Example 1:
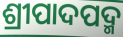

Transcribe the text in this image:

ଶ୍ରୀପାଦପଦ୍ମ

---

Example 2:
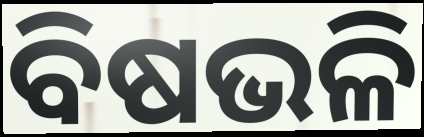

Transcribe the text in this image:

ବିଷଭଳି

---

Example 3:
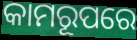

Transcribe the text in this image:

କାମରୂପରେ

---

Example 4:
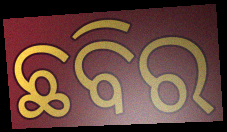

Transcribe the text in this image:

ଛବିର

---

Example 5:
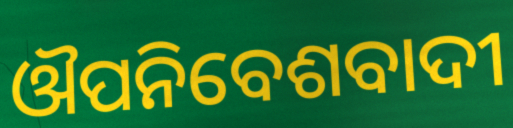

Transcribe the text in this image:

ଔପନିବେଶବାଦୀ